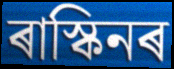
ৰাস্কিনৰ